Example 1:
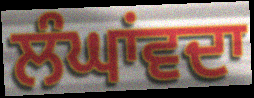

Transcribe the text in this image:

ਲੰਘਾਂਵਦਾ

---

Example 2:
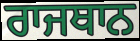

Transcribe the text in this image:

ਰਾਜਥਾਨ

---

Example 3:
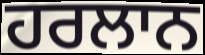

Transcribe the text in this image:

ਹਰਲਾਨ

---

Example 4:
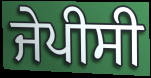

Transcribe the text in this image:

ਜੇਪੀਸੀ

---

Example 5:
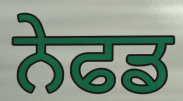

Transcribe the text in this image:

ਨੇਫਡ